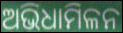
ଅଭିଧାମିଳନ